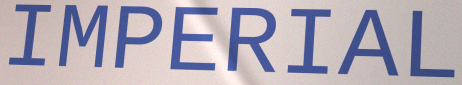
IMPERIAL